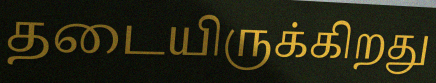
தடையிருக்கிறது